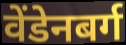
वेंडेनबर्ग